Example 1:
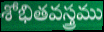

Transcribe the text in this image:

శోభితవస్త్రము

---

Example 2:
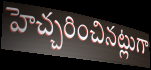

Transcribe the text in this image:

హెచ్చరించినట్లుగా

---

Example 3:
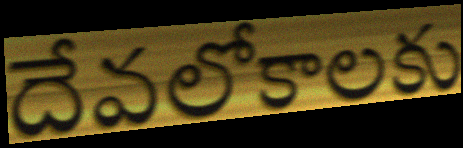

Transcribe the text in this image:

దేవలోకాలకు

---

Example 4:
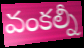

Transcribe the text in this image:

వంకల్నీ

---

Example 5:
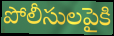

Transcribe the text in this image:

పోలీసులపైకి